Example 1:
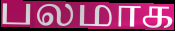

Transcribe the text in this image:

பலமாக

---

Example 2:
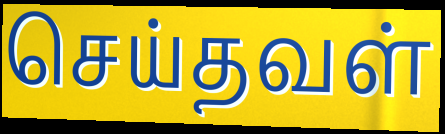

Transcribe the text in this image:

செய்தவள்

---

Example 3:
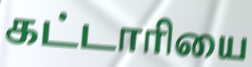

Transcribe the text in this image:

கட்டாரியை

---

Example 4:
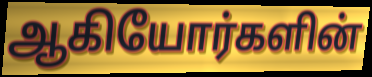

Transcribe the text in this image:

ஆகியோர்களின்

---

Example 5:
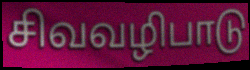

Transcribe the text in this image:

சிவவழிபாடு